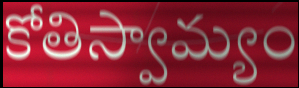
కోతిస్వామ్యం